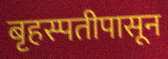
बृहस्पतीपासून